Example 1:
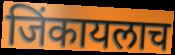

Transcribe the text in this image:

जिंकायलाच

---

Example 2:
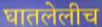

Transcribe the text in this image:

घातलेलीच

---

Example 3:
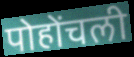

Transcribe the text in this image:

पोहोंचली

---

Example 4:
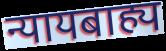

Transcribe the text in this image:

न्यायबाह्य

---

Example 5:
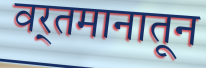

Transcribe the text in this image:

वर्तमानातून